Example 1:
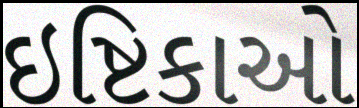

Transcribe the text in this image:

ઇષ્ટિકાઓ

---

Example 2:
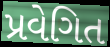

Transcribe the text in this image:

પ્રવેગિત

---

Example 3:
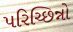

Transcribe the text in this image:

પરિચ્છિન્નો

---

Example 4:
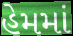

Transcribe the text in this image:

હેમમાં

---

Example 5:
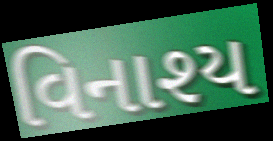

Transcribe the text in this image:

વિનાશ્ય